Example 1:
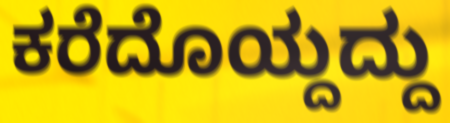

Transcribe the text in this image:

ಕರೆದೊಯ್ದದ್ದು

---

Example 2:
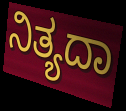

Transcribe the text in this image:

ನಿತ್ಯದಾ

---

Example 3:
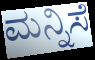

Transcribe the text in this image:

ಮನ್ನಿಸೆ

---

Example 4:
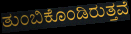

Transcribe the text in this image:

ತುಂಬಿಕೊಂಡಿರುತ್ತವೆ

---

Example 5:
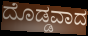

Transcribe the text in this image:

ದೊಡ್ಡವಾದ